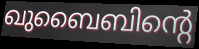
ഖുബൈബിന്റെ